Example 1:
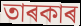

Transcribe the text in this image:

তাৰকাৰ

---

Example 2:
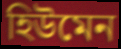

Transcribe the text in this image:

হিউমেন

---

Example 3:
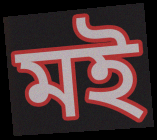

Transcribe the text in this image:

মই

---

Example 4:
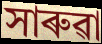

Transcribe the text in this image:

সাৰুৱা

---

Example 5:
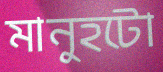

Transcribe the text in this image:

মানুহটো